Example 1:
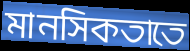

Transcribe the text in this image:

মানসিকতাতে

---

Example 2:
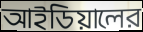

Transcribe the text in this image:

আইডিয়ালের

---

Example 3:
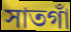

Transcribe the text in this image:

সাতগাঁ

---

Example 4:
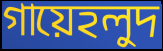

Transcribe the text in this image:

গায়েহলুদ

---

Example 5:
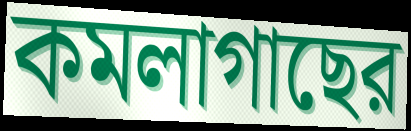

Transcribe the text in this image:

কমলাগাছের